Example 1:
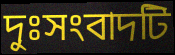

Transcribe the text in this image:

দুঃসংবাদটি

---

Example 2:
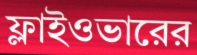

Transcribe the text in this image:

ফ্লাইওভারের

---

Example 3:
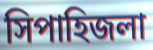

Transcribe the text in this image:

সিপাহিজলা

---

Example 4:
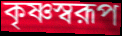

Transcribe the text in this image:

কৃষ্ণস্বরূপ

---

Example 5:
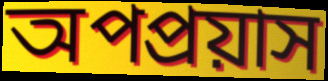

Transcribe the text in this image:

অপপ্রয়াস